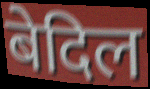
बेदिल